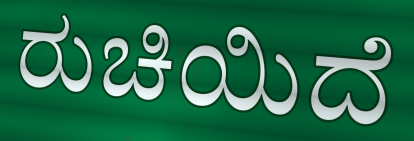
ರುಚಿಯಿದೆ